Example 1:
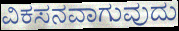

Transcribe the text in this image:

ವಿಕಸನವಾಗುವುದು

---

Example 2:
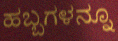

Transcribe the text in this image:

ಹಬ್ಬಗಳನ್ನೂ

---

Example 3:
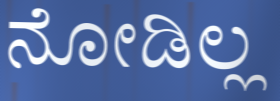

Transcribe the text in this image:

ನೋಡಿಲ್ಲ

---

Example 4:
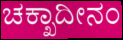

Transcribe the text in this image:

ಚಕ್ಖಾದೀನಂ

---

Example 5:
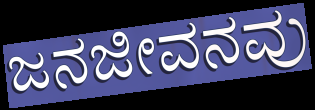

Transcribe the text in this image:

ಜನಜೀವನವು